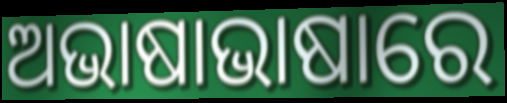
ଅଭାଷାଭାଷାରେ